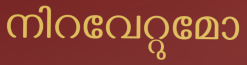
നിറവേറ്റുമോ